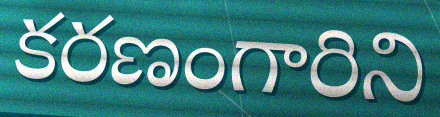
కరణంగారిని